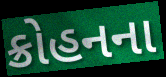
ક્રોહનના